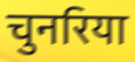
चुनरिया